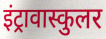
इंट्रावास्कुलर